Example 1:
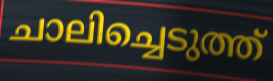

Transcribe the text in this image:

ചാലിച്ചെടുത്ത്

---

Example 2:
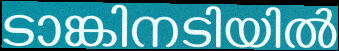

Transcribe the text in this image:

ടാങ്കിനടിയിൽ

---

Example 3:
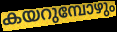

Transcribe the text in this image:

കയറുമ്പോഴും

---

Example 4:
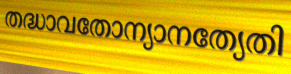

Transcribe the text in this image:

തദ്ധാവതോന്യാനത്യേതി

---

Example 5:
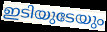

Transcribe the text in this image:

ഇടിയുടേയും